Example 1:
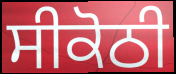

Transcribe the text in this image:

ਸੀਕੋਠੀ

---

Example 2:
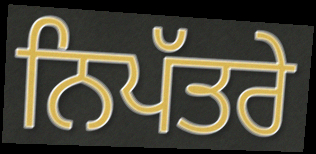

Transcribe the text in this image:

ਨਿਪੱਤਰੇ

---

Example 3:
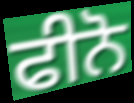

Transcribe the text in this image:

ਫੀਨੋ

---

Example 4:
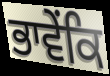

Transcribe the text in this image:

ਭਾਵੇਂਕਿ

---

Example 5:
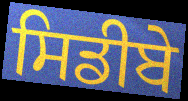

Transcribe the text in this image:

ਸਿਡੀਬੇ